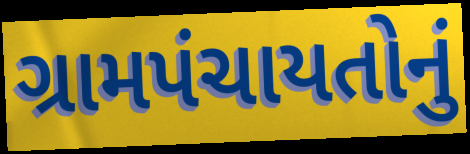
ગ્રામપંચાયતોનું